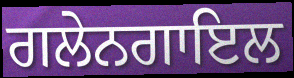
ਗਲੇਨਗਾਇਲ